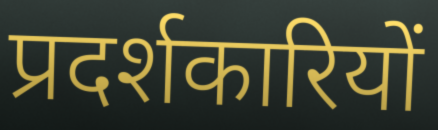
प्रदर्शकारियों